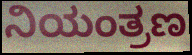
ನಿಯಂತ್ರಣ